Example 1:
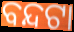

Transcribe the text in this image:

ବନ୍ଦଟା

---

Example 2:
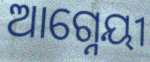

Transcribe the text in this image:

ଆଗ୍ନେୟୀ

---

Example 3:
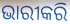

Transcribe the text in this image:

ଭାରୀକରି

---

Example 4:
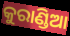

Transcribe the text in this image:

କୁରାଣ୍ଡିଆ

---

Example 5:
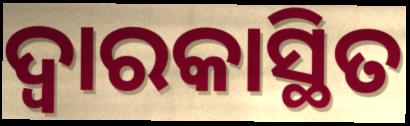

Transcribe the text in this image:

ଦ୍ୱାରକାସ୍ଥିତ